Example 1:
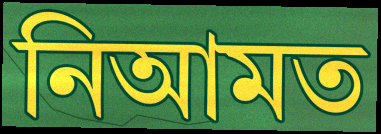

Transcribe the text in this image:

নিআমত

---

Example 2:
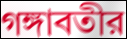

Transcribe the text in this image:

গঙ্গাবতীর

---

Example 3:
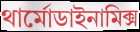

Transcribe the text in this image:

থার্মোডাইনামিক্স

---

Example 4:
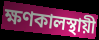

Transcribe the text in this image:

ক্ষণকালস্থায়ী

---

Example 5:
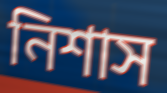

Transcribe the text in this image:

নিশাস